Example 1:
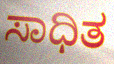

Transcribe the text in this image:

ಸಾಧಿತ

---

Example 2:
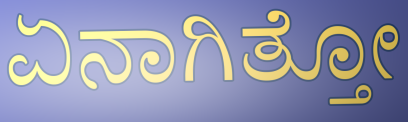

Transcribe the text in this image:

ಏನಾಗಿತ್ತೋ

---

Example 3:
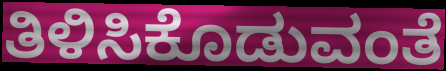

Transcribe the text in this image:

ತಿಳಿಸಿಕೊಡುವಂತೆ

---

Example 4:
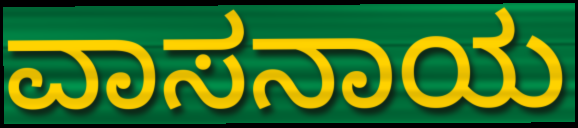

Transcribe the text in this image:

ವಾಸನಾಯ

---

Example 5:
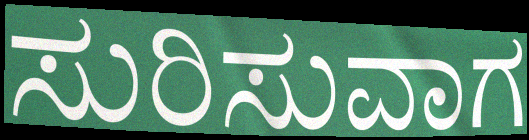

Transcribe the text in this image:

ಸುರಿಸುವಾಗ